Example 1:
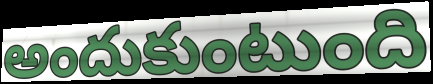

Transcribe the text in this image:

అందుకుంటుంది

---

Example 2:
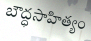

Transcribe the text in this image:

బౌద్ధసాహిత్యం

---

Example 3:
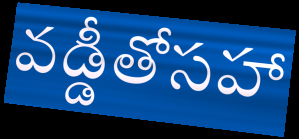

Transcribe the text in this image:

వడ్డీతోసహా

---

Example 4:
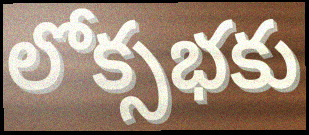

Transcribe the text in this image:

లోక్సభకు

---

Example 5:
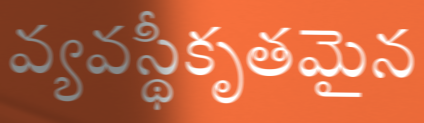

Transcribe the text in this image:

వ్యవస్థీకృతమైన